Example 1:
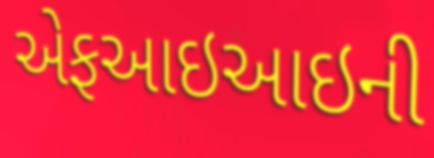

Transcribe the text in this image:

એફઆઇઆઇની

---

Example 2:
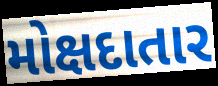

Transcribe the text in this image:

મોક્ષદાતાર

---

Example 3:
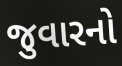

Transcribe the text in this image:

જુવારનો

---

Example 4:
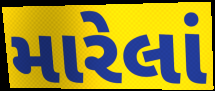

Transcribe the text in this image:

મારેલાં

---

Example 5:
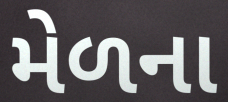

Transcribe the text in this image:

મેળના